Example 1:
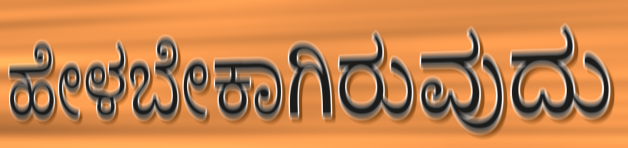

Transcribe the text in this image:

ಹೇಳಬೇಕಾಗಿರುವುದು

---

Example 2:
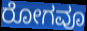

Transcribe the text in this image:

ರೋಗವೂ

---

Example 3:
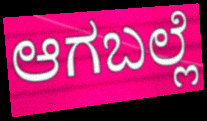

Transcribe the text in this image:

ಆಗಬಲ್ಲೆ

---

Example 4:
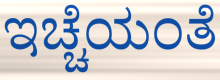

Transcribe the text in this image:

ಇಚ್ಚೆಯಂತೆ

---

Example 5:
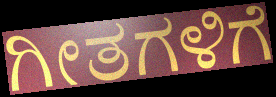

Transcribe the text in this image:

ಗೀತಗಳಿಗೆ